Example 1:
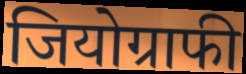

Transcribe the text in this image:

जियोग्राफी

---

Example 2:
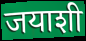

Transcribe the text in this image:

जयाशी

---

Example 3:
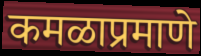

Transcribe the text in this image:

कमळाप्रमाणे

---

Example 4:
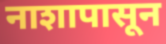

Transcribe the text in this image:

नाशापासून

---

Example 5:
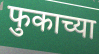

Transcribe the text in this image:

फुकाच्या